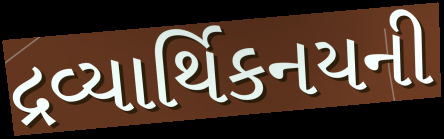
દ્રવ્યાર્થિકનયની